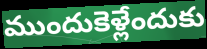
ముందుకెళ్లేందుకు